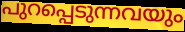
പുറപ്പെടുന്നവയും